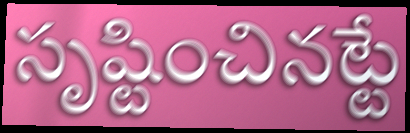
సృష్టించినట్టే